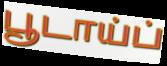
பூடாய்ப்